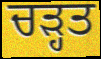
ਚੜ੍ਹਤ